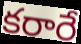
కరారే